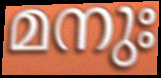
മനുഃ